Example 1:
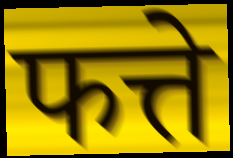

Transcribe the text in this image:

फत्ते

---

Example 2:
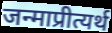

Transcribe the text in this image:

जन्माप्रीत्यर्थ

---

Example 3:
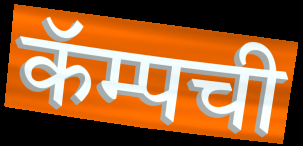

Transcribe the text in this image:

कॅम्पची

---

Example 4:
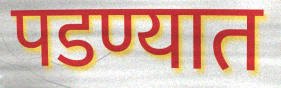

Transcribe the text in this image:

पडण्यात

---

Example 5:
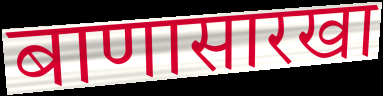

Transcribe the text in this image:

बाणासारखा